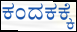
ಕಂದಕಕ್ಕೆ